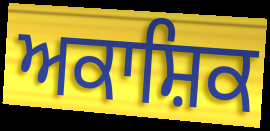
ਅਕਾਸ਼ਿਕ